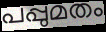
പപ്പുമതം